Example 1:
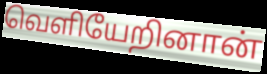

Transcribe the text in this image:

வெளியேறினான்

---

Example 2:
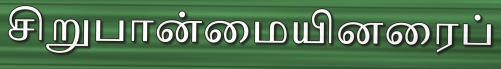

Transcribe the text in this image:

சிறுபான்மையினரைப்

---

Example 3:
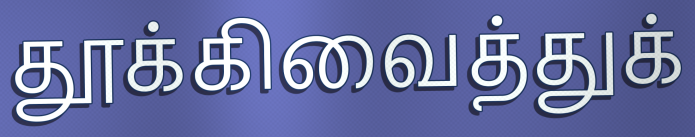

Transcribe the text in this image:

தூக்கிவைத்துக்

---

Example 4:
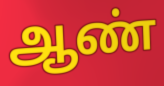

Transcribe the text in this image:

ஆண்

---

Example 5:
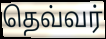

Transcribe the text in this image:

தெவ்வர்